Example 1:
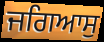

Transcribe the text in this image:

ਜਗਿਆਸੁ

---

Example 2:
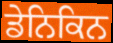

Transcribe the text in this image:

ਡੇਨਿਕਿਨ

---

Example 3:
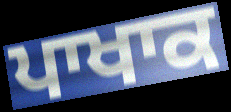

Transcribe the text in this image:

ਪਾਖਾਕ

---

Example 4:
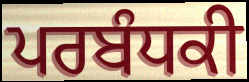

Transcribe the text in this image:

ਪਰਬੰਧਕੀ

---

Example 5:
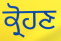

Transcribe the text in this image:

ਕ੍ਰੋਹਣ